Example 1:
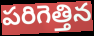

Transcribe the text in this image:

పరిగెత్తిన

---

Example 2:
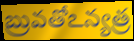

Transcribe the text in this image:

బ్రువతోఽన్యత్ర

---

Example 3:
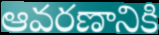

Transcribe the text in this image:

ఆవరణానికి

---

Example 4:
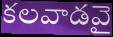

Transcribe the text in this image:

కలవాడవై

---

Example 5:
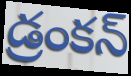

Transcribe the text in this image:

డ్రంకన్